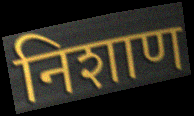
निशाण